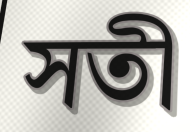
সতী